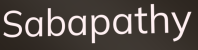
Sabapathy